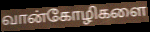
வான்கோழிகளை